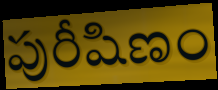
పురీషిణం